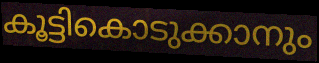
കൂട്ടികൊടുക്കാനും